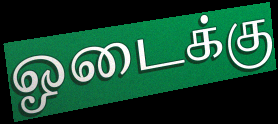
ஓடைக்கு